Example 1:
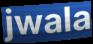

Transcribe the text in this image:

jwala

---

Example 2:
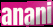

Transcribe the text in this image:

anani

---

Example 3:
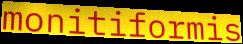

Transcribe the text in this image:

monitiformis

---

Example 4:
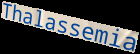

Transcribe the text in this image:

Thalassemia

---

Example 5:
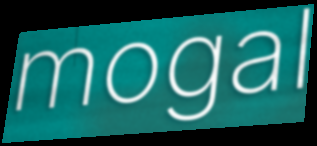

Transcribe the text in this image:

mogal